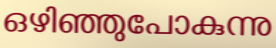
ഒഴിഞ്ഞുപോകുന്നു